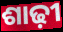
ଶାଢ଼ୀ